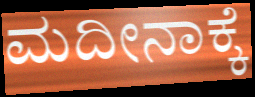
ಮದೀನಾಕ್ಕೆ